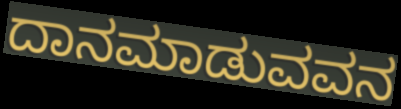
ದಾನಮಾಡುವವನ